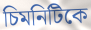
চিমনিটিকে